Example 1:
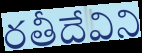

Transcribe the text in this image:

రతీదేవిని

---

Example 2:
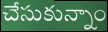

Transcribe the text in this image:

చేసుకున్నాం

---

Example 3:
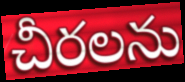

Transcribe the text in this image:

చీరలను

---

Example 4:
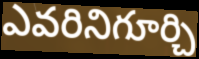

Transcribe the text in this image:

ఎవరినిగూర్చి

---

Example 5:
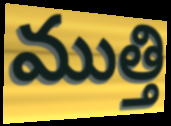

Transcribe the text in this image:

ముత్తి